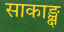
साकाङ्क्ष